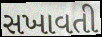
સખાવતી